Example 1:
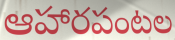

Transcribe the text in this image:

ఆహారపంటల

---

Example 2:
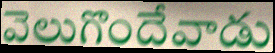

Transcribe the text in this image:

వెలుగొందేవాడు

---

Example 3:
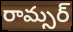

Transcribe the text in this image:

రామ్సర్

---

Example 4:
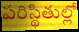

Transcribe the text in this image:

పరిస్థితుల్లో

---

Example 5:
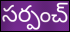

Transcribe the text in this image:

సర్పంచ్